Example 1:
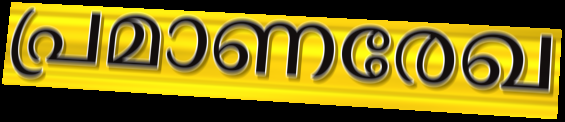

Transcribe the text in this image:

പ്രമാണരേഖ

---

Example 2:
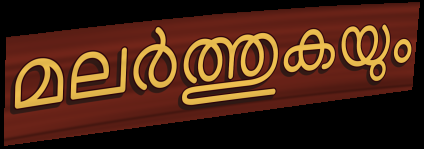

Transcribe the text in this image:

മലർത്തുകയും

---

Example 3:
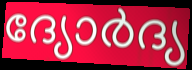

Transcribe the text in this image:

ദ്യോർദ്യ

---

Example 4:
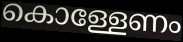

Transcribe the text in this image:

കൊള്ളേണം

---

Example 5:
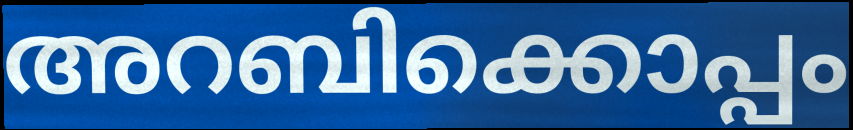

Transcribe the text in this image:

അറബിക്കൊപ്പം